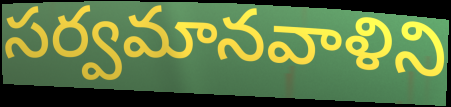
సర్వమానవాళిని